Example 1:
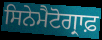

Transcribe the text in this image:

ਸਿਨੇਮੈਟੋਗ੍ਰਾਫ਼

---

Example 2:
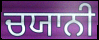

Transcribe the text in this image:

ਚਯਾਨੀ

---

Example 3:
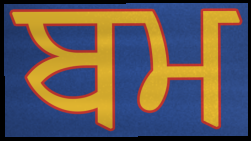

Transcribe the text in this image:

ਬਮ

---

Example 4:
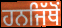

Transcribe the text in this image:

ਹਨਜਿੱਥੋਂ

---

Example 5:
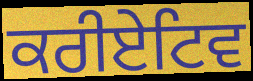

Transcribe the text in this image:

ਕਰੀਏਟਿਵ